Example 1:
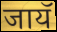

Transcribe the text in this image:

जायॅ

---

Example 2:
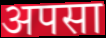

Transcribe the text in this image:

अपसा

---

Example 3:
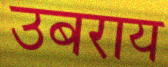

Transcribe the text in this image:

उबराय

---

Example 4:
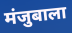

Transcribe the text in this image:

मंजुबाला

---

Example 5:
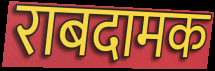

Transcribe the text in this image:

राबदामक